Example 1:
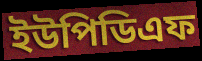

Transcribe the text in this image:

ইউপিডিএফ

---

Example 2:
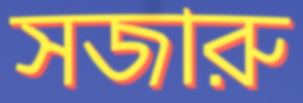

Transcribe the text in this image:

সজারু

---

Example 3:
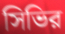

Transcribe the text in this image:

সিভির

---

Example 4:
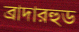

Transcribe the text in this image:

ব্রাদারহুড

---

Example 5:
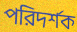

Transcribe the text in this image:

পরিদর্শক